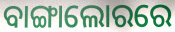
ବାଙ୍ଗାଲୋରରେ